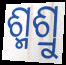
ଶ୍ମଶ୍ରୁ